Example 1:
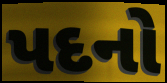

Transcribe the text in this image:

પદનો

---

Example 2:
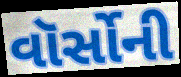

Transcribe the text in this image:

વૉર્સોની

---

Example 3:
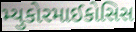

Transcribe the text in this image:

મ્યુકોરમાઈકોસિસ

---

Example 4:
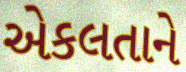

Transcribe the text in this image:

એકલતાને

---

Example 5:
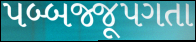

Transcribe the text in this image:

પબ્બજ્જૂપગતા